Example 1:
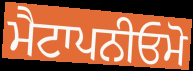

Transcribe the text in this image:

ਮੈਟਾਪਨੀਓਮੋ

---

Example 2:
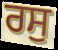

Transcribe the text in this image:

ਰਸੁ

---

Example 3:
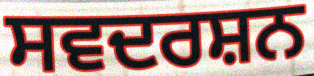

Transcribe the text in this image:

ਸਵਦਰਸ਼ਨ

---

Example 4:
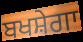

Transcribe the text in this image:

ਬਖਸ਼ੇਗਾ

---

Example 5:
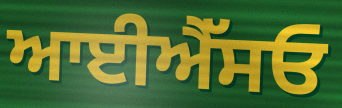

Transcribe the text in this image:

ਆਈਐੱਸਓ